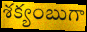
శక్యంబుగా